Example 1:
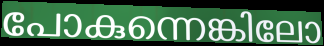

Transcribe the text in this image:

പോകുന്നെങ്കിലോ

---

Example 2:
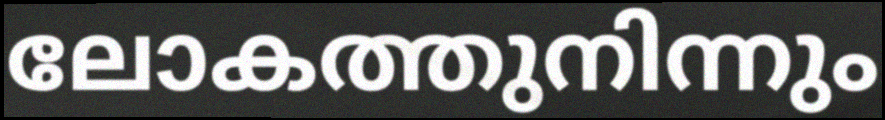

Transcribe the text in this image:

ലോകത്തുനിന്നും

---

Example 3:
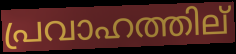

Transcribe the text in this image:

പ്രവാഹത്തില്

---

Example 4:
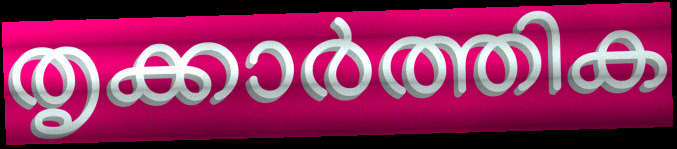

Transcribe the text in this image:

തൃക്കാർത്തിക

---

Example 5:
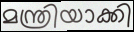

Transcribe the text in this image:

മന്ത്രിയാക്കി